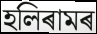
হলিৰামৰ